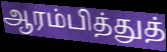
ஆரம்பித்துத்